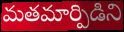
మతమార్పిడిని